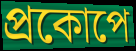
প্রকোপে